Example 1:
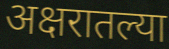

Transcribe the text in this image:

अक्षरातल्या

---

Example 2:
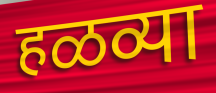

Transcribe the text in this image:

हळव्या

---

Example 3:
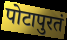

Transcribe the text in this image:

पोटापुरतं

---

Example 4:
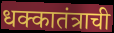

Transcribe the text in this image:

धक्कातंत्राची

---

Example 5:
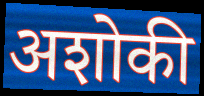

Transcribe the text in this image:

अशोकी